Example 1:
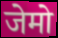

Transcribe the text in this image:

जेमो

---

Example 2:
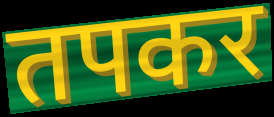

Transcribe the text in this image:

तपकर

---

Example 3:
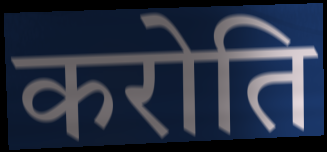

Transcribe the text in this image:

करोति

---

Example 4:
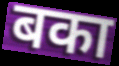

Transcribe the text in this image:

बका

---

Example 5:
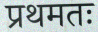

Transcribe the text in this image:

प्रथमतः